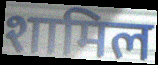
शामिल